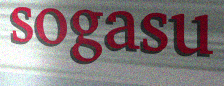
sogasu